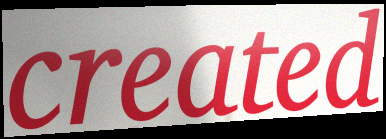
created